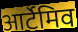
आर्टेमिव